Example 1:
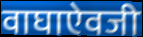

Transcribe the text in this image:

वाघाऐवजी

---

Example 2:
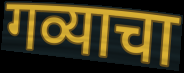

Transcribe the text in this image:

गव्याचा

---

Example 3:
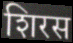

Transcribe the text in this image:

शिरस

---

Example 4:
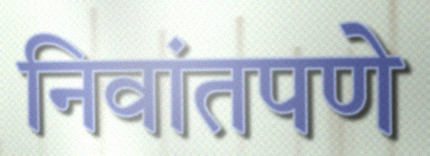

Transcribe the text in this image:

निवांतपणे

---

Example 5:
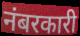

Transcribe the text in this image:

नंबरकारी